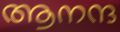
ആനന്ദ